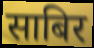
साबिर